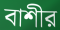
বাশীর